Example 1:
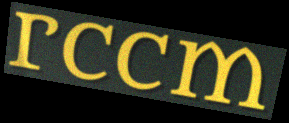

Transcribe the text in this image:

rccm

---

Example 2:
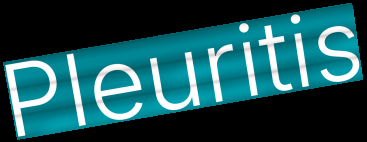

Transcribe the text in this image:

Pleuritis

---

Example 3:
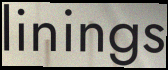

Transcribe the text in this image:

linings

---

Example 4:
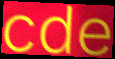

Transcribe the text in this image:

cde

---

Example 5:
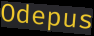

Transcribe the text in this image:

Odepus